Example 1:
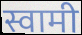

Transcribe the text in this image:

स्वामी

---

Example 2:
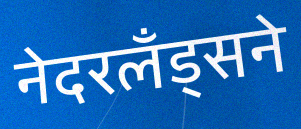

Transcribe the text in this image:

नेदरलँड्सने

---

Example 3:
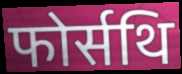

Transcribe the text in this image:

फोर्सथि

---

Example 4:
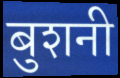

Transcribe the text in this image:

बुशनी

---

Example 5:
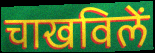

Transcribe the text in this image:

चाखविलें